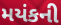
મયંકની